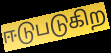
ஈடுபடுகிற